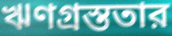
ঋণগ্রস্ততার